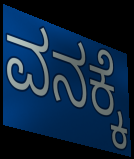
ವನಕ್ಕೆ